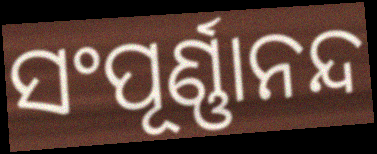
ସଂପୂର୍ଣ୍ଣାନନ୍ଦ